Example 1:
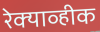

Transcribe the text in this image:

रेक्याव्हीक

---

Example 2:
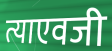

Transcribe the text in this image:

त्याएवजी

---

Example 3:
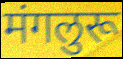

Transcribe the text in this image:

मंगलुरू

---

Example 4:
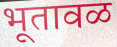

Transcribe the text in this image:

भूतावळ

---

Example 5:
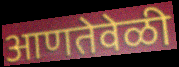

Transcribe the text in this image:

आणतेवेळी